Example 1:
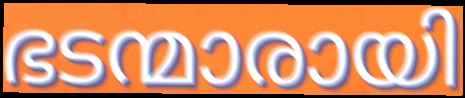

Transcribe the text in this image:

ഭടന്മാരായി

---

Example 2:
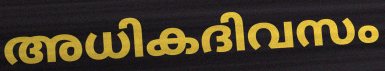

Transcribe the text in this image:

അധികദിവസം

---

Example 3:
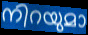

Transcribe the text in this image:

നിറയുമാ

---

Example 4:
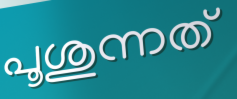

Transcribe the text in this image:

പൂശുന്നത്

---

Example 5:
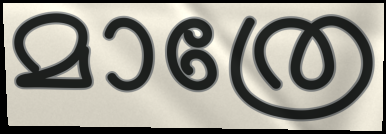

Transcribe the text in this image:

മാത്രേ